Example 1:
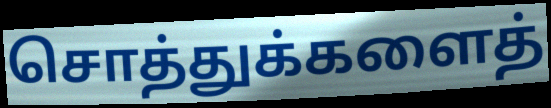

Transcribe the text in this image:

சொத்துக்களைத்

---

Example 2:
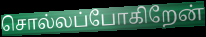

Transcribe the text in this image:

சொல்லப்போகிறேன்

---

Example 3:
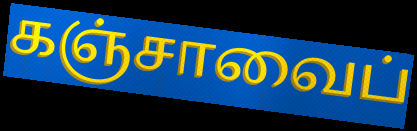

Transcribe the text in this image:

கஞ்சாவைப்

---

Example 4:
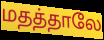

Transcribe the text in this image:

மதத்தாலே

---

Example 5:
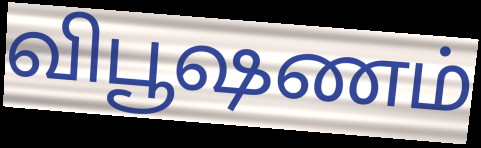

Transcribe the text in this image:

விபூஷணம்